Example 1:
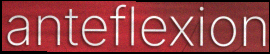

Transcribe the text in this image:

anteflexion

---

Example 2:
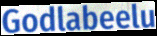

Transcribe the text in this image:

Godlabeelu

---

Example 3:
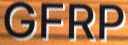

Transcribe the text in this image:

GFRP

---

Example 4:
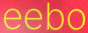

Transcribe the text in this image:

eebo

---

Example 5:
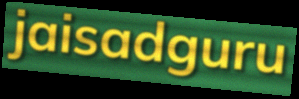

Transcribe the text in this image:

jaisadguru